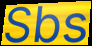
Sbs